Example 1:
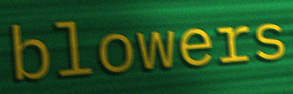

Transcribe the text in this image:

blowers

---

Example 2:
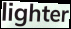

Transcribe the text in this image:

lighter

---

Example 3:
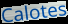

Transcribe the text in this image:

Calotes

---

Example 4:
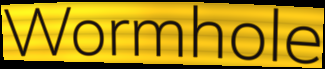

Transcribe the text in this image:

Wormhole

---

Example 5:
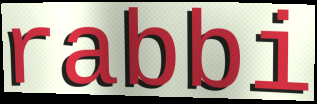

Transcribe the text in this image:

rabbi